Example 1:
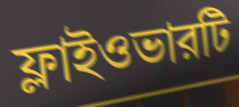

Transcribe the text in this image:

ফ্লাইওভারটি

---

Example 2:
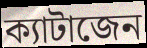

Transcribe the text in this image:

ক্যাটাজেন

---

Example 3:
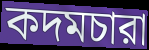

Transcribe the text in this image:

কদমচারা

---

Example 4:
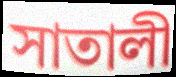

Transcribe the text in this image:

সাতালী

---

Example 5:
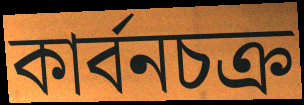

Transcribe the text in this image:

কার্বনচক্র